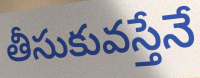
తీసుకువస్తేనే